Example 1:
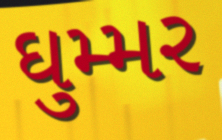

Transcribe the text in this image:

ઘુમ્મર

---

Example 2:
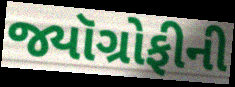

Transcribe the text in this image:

જ્યૉગ્રોફીની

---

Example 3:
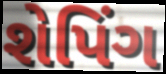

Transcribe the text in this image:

શેપિંગ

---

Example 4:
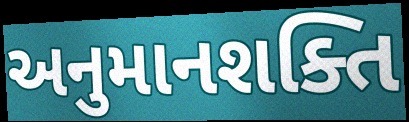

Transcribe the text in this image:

અનુમાનશક્તિ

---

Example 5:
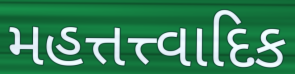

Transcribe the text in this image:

મહત્તત્ત્વાદિક